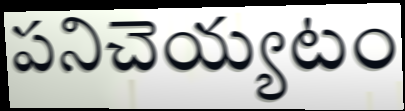
పనిచెయ్యటం